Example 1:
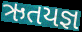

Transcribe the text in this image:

ઋતયજ્ઞ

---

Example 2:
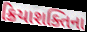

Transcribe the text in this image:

ક્રિયાશક્તિના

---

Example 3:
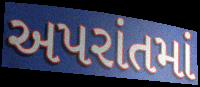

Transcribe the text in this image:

અપરાંતમાં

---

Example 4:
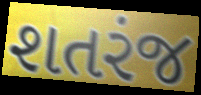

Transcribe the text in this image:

શતરંજ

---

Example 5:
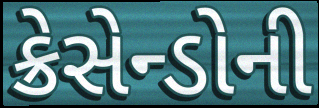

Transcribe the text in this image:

ક્રેસેન્ડોની